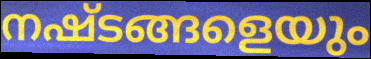
നഷ്ടങ്ങളെയും